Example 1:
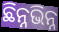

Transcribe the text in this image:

ଛିନ୍ନଭିନ୍ନ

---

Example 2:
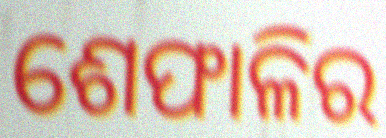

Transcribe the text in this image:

ଶେଫାଳିର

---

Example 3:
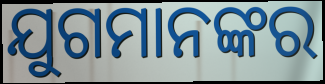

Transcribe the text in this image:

ଯୁଗମାନଙ୍କର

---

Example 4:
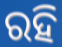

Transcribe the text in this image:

ରହି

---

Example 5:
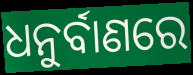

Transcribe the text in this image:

ଧନୁର୍ବାଣରେ